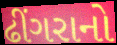
ઢીંગરાનો